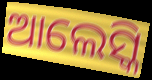
ଆଲେସ୍କି